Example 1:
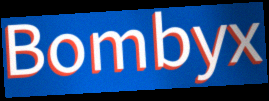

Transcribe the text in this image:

Bombyx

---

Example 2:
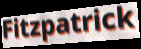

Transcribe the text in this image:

Fitzpatrick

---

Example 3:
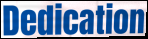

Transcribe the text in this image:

Dedication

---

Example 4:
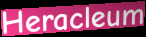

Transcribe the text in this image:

Heracleum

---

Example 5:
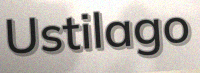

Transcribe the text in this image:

Ustilago